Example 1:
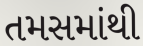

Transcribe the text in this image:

તમસમાંથી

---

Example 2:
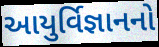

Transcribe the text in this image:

આયુર્વિજ્ઞાનનો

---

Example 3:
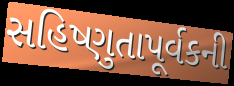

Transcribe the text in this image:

સહિષ્ણુતાપૂર્વકની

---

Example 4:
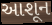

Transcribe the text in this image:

આશૂન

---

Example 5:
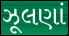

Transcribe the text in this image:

ઝૂલણાં